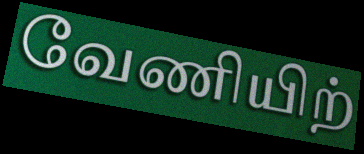
வேணியிற்